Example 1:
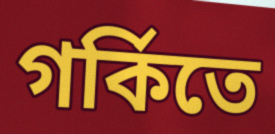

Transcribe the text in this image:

গর্কিতে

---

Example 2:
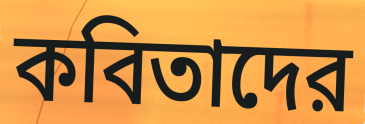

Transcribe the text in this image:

কবিতাদের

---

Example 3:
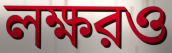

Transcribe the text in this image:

লক্ষরও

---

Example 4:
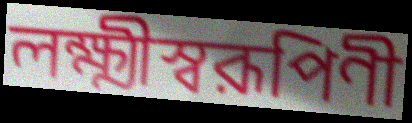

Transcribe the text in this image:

লক্ষ্মীস্বরূপিণী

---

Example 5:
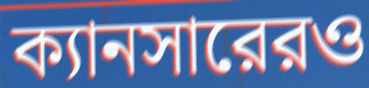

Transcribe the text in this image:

ক্যানসারেরও